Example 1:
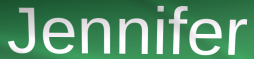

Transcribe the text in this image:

Jennifer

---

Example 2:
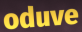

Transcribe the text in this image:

oduve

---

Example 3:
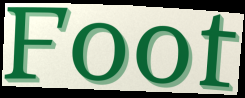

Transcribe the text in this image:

Foot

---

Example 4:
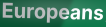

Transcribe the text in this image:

Europeans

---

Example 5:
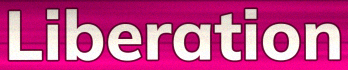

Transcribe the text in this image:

Liberation